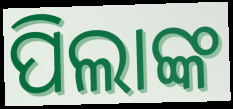
ପିଲାଙ୍କ